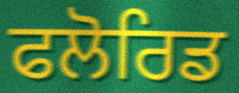
ਫਲੋਰਿਡ